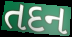
તદન